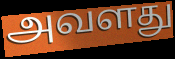
அவளது